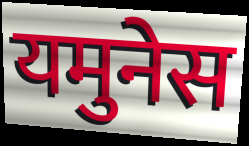
यमुनेस